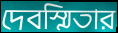
দেবস্মিতার